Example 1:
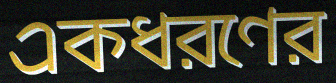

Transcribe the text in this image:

একধরণের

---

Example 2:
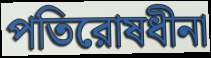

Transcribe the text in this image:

পতিরোষধীনা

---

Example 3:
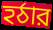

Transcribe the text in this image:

হঠার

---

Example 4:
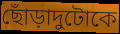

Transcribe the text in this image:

ছোঁড়াদুটোকে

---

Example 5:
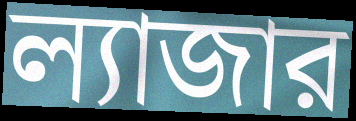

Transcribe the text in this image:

ল্যাজার